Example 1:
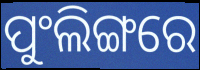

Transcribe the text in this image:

ପୁଂଲିଙ୍ଗରେ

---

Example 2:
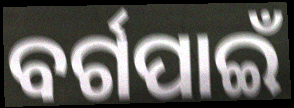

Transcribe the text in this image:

ବର୍ଗପାଇଁ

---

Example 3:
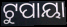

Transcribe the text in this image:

ଟୁପାୟା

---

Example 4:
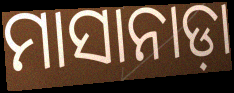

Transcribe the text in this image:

ମାସାନାଡ଼ା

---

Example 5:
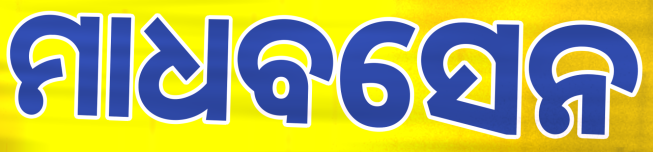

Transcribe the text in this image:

ମାଧବସେନ